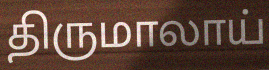
திருமாலாய்